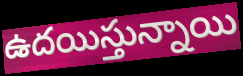
ఉదయిస్తున్నాయి